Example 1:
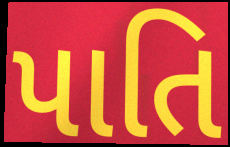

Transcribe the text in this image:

પાતિ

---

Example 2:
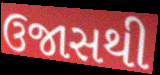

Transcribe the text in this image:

ઉજાસથી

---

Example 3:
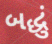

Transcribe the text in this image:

બદ્ધું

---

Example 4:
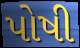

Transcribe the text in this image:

પોષી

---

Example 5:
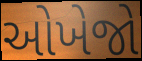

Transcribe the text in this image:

ઓખેજો